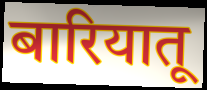
बारियातू